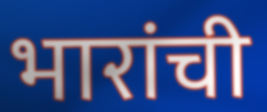
भारांची